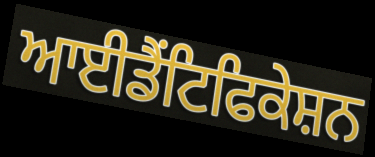
ਆਈਡੈਂਟਿਫਿਕੇਸ਼ਨ